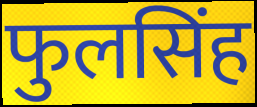
फुलसिंह